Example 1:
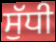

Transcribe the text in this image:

ਸੁੱਧੀ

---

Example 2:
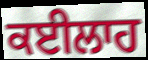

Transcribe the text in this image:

ਕਈਲਾਹ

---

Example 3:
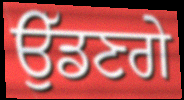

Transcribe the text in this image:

ਉੱਡਣਗੇ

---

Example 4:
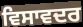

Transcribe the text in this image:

ਵਿਸਾਵਦਰ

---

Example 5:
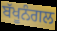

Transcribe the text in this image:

ਬੱਖੂਨੰਗਲ